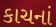
કાચનાં